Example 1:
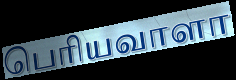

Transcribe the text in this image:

பெரியவாளா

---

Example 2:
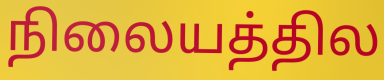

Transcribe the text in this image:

நிலையத்தில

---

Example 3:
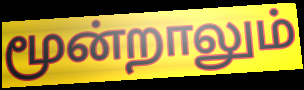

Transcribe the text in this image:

மூன்றாலும்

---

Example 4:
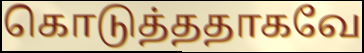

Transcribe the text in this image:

கொடுத்ததாகவே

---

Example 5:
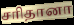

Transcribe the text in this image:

சரிதானா